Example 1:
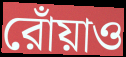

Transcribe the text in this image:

রোঁয়াও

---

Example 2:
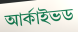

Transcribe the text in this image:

আর্কাইভড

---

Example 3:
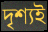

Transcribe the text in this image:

দৃশ্যই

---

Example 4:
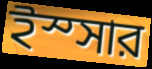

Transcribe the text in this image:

ইস্সার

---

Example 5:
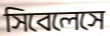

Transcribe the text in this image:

সিবেলেসে